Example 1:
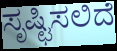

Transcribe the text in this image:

ಸೃಷ್ಟಿಸಲಿದೆ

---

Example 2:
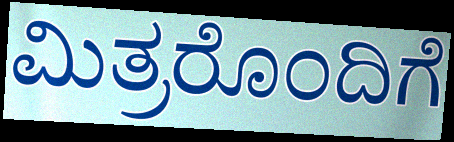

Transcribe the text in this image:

ಮಿತ್ರರೊಂದಿಗೆ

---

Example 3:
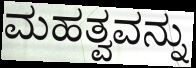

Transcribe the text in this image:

ಮಹತ್ವವನ್ನು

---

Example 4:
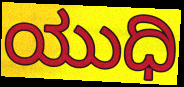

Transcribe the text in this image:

ಯುಧಿ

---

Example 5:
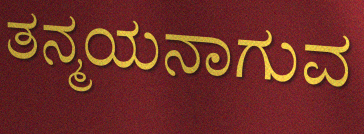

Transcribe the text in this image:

ತನ್ಮಯನಾಗುವ